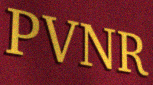
PVNR